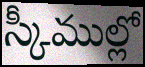
స్కీముల్లో